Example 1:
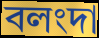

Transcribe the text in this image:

বলংদা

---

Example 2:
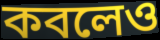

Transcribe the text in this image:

কবলেও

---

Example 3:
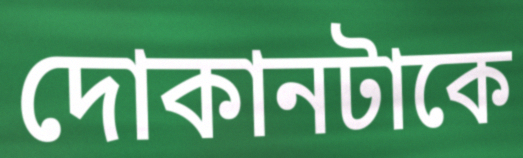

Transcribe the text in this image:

দোকানটাকে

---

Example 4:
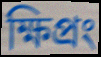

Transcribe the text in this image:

ক্ষিপ্রং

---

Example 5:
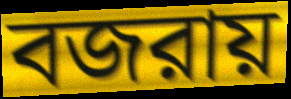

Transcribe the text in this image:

বজরায়